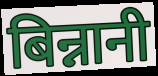
बिन्नानी